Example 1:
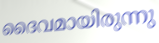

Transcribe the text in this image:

ദൈവമായിരുന്നു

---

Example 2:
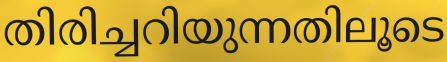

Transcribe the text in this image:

തിരിച്ചറിയുന്നതിലൂടെ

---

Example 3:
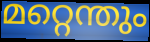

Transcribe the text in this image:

മറ്റെന്തും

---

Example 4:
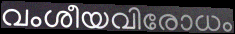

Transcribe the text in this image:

വംശീയവിരോധം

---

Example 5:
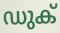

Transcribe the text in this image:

ഡുക്